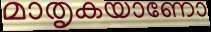
മാതൃകയാണോ